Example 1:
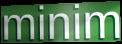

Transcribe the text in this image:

minim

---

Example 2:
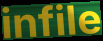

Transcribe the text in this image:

infile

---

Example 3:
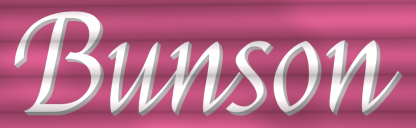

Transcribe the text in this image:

Bunson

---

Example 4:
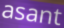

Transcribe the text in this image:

asant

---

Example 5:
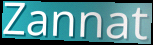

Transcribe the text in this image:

Zannat